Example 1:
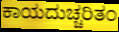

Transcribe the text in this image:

ಕಾಯದುಚ್ಚರಿತಂ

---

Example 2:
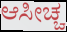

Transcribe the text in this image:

ಆಸೀಚ್ಚ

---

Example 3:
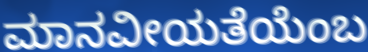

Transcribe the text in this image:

ಮಾನವೀಯತೆಯೆಂಬ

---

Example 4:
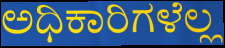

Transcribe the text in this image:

ಅಧಿಕಾರಿಗಳೆಲ್ಲ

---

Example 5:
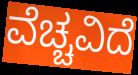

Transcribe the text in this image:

ವೆಚ್ಚವಿದೆ